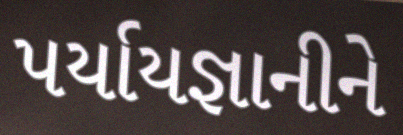
પર્યાયજ્ઞાનીને